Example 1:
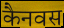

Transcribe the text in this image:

कैनवस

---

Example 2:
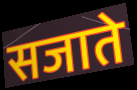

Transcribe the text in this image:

सजाते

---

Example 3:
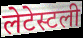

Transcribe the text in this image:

लेटेस्टली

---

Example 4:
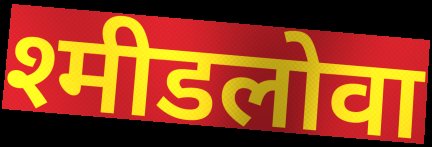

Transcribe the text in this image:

श्मीडलोवा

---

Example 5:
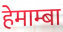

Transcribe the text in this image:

हेमाम्बा